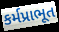
કર્મપ્રાભૂત